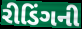
રીડિંગની